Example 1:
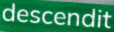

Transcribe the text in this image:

descendit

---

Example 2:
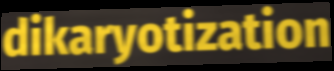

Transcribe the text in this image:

dikaryotization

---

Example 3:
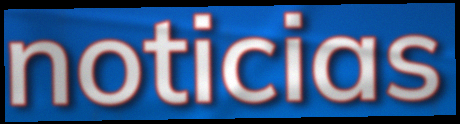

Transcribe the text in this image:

noticias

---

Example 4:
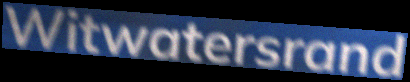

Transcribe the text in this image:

Witwatersrand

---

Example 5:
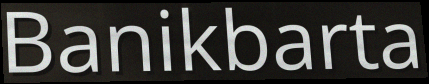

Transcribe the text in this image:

Banikbarta